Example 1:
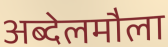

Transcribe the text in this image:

अब्देलमौला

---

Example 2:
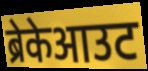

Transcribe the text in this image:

ब्रेकेआउट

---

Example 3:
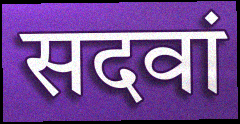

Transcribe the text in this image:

सदवां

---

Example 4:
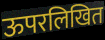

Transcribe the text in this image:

ऊपरलिखित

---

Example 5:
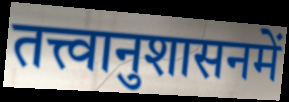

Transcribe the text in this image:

तत्त्वानुशासनमें